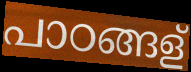
പാഠങ്ങള്